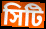
সিটি